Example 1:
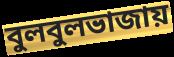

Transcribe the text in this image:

বুলবুলভাজায়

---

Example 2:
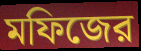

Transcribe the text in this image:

মফিজের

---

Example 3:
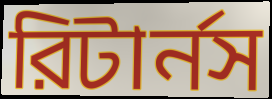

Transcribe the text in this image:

রিটার্নস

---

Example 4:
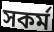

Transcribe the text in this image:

সকর্ম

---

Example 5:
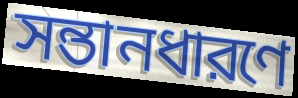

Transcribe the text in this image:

সন্তানধারণে